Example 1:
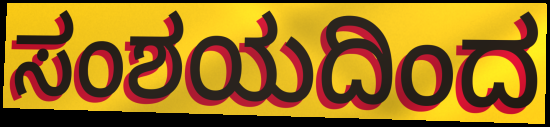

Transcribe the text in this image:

ಸಂಶಯದಿಂದ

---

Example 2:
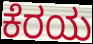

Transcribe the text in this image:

ಕೆರಯ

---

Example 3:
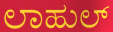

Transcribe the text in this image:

ಲಾಹುಲ್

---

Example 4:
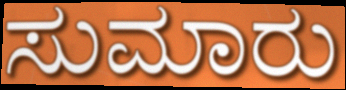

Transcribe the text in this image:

ಸುಮಾರು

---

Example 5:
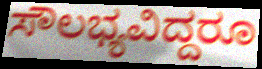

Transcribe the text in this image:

ಸೌಲಭ್ಯವಿದ್ದರೂ